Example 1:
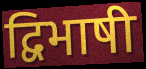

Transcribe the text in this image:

द्विभाषी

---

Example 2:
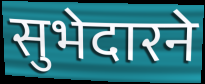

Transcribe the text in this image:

सुभेदारने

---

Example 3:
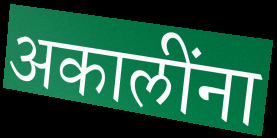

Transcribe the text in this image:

अकालींना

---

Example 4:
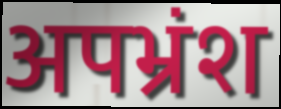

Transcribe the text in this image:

अपभ्रंश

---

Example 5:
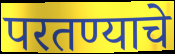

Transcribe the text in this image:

परतण्याचे